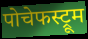
पोचेफस्ट्रूम